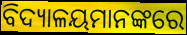
ବିଦ୍ୟାଳୟମାନଙ୍କରେ